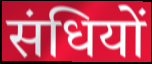
संधियों